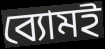
ব্যোমই